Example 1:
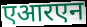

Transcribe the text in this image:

एआरएन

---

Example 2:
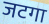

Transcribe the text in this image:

जटगा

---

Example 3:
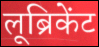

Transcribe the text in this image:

लूब्रिकेंट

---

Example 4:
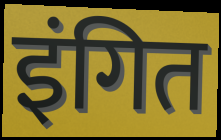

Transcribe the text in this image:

इंगित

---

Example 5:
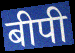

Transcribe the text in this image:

बीपी